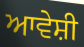
ਆਵੇਸ਼ੀ